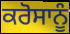
ਕਰੋਸਾਨੂੰ